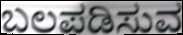
ಬಲಪಡಿಸುವ